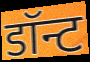
डॉन्ट